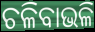
ଚଳିବାଭଳି